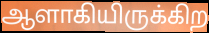
ஆளாகியிருக்கிற